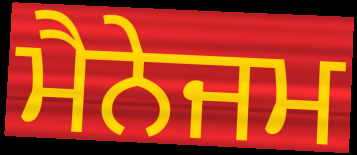
ਮੈਨੇਜਮ